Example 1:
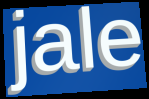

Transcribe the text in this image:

jale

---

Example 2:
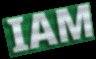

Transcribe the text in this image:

IAM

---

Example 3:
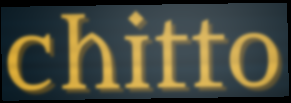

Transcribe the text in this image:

chitto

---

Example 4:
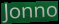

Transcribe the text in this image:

Jonno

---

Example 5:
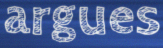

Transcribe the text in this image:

argues